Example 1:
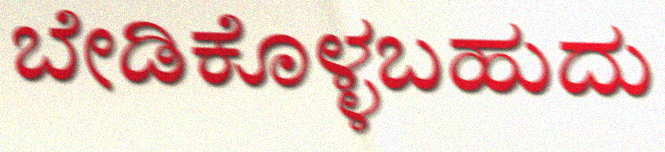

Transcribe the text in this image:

ಬೇಡಿಕೊಳ್ಳಬಹುದು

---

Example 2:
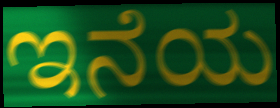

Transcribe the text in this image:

ಇನೆಯ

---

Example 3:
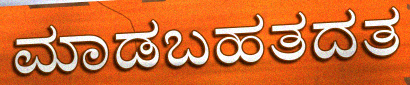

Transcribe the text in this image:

ಮಾಡಬಹತದತ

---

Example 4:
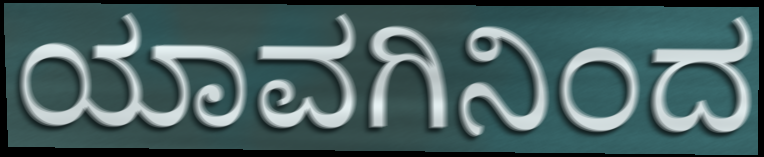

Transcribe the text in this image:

ಯಾವಗಿನಿಂದ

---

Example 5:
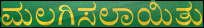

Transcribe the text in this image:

ಮಲಗಿಸಲಾಯಿತು